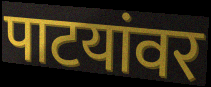
पाटयांवर